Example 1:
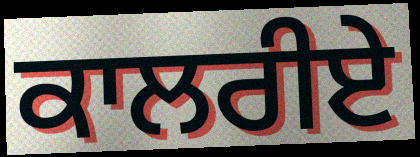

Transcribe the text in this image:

ਕਾਲਰੀਏ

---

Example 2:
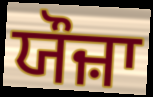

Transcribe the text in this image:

ਯੌਜ਼ਾ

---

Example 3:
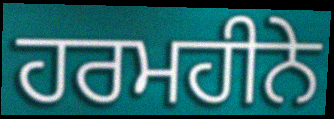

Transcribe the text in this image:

ਹਰਮਹੀਨੇ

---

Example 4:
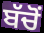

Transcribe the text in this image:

ਬੱਚੋਂ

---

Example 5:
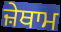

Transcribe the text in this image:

ਜ਼ੇਥਾਮ